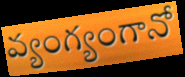
వ్యంగ్యంగానో